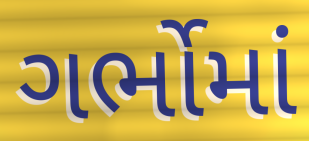
ગર્ભોમાં